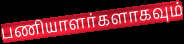
பணியாளர்களாகவும்